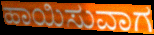
ಹಾಯಿಸುವಾಗ